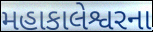
મહાકાલેશ્વરના